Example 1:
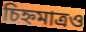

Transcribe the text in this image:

চিহ্নমাত্রও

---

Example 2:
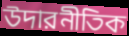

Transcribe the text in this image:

উদারনীতিক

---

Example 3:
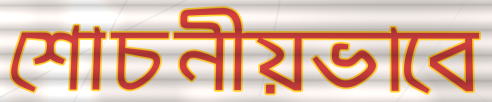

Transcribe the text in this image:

শোচনীয়ভাবে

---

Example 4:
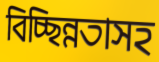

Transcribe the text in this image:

বিচ্ছিন্নতাসহ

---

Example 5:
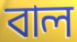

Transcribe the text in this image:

বাল